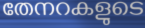
തേനറകളുടെ